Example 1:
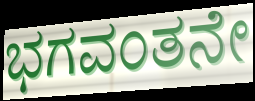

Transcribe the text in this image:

ಭಗವಂತನೇ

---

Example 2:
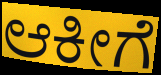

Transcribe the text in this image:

ಆಕೀಗೆ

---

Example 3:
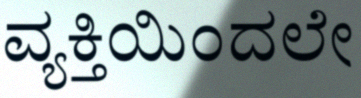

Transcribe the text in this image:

ವ್ಯಕ್ತಿಯಿಂದಲೇ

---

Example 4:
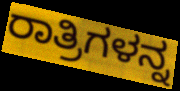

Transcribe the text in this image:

ರಾತ್ರಿಗಳನ್ನ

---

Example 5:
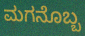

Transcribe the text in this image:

ಮಗನೊಬ್ಬ